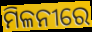
ମିଳନୀରେ